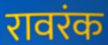
रावरंक